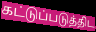
கட்டுப்படுத்திட